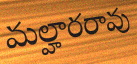
మల్హారరావు